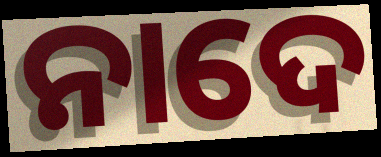
ନାଦେ